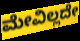
ಮೇವಿಲ್ಲದೇ